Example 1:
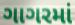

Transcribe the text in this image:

ગાગરમાં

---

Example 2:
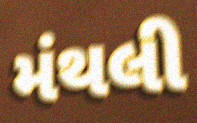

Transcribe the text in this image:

મંથલી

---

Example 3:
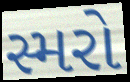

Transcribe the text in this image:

સ્મરો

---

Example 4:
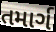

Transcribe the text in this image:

તમાર્ગ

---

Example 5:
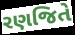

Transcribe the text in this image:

રણજિતે